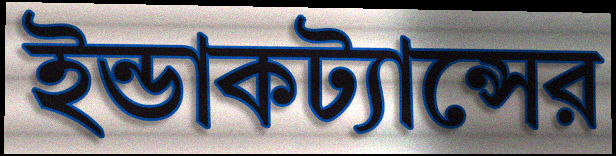
ইন্ডাকট্যান্সের